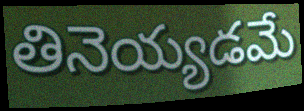
తినెయ్యడమే